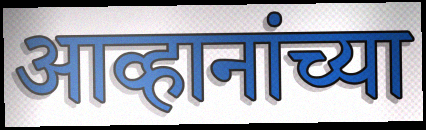
आव्हानांच्या